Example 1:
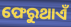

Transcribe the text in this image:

ଫେରୁଥାଏଁ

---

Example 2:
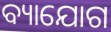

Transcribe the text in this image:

ବ୍ୟାଯୋଗ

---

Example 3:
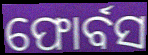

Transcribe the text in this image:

ଫୋର୍ବସ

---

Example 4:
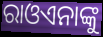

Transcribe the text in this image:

ରାଓଏନାଙ୍କୁ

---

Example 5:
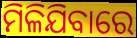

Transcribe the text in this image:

ମିଳିଯିବାରେ